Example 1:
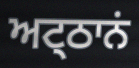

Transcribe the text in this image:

ਅਟ੍ਠਾਨਂ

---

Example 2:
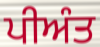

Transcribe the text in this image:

ਪੀਅੰਤ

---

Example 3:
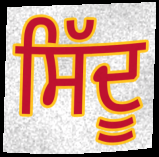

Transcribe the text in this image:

ਸਿੱਦੂ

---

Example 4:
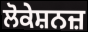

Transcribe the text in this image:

ਲੋਕੇਸ਼ਨਜ਼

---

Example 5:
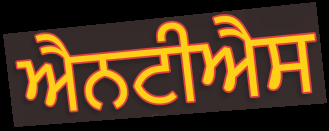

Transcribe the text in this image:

ਐਨਟੀਐਸ